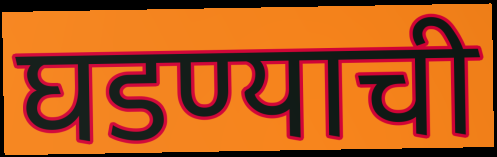
घडण्याची